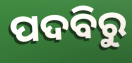
ପଦବିରୁ